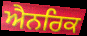
ਐਨਰਿਕ